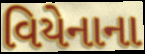
વિયેનાના